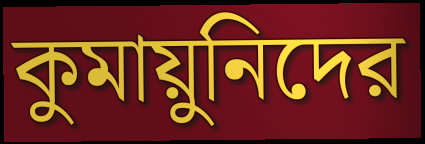
কুমায়ুনিদের